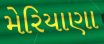
મેરિયાણા